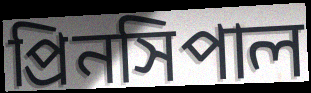
প্রিনসিপাল